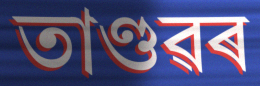
তাণ্ডৱৰ